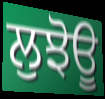
ਲੁਝੋਊ